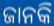
ଜାନକି